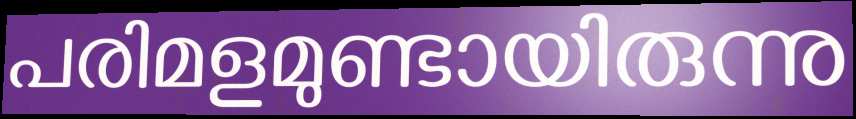
പരിമളമുണ്ടായിരുന്നു